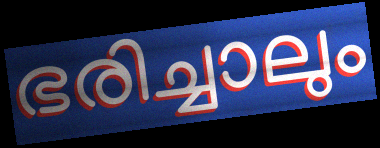
ഭരിച്ചാലും